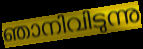
ഞാനിവിടുന്നു